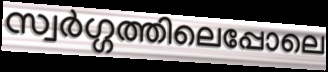
സ്വർഗ്ഗത്തിലെപ്പോലെ